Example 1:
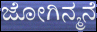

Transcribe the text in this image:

ಜೋಗಿನ್ಮನೆ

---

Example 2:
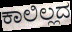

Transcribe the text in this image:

ಕಾಲಿಲ್ಲದ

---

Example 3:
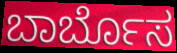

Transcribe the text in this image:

ಬಾರ್ಬೊಸ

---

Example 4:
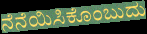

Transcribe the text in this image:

ನೆನೆಯಿಸಿಕೊಂಬುದು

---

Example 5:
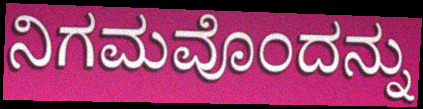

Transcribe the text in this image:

ನಿಗಮವೊಂದನ್ನು